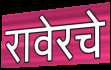
रावेरचे